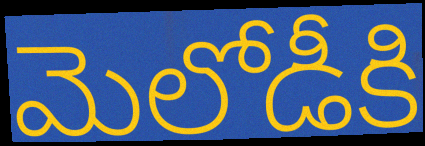
మెలోడీకి